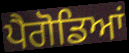
ਪੈਗੋਡਿਆਂ